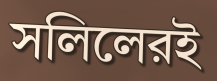
সলিলেরই